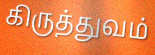
கிருத்துவம்